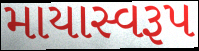
માયાસ્વરૂપ